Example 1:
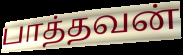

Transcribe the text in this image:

பாத்தவன்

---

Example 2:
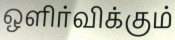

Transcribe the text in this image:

ஒளிர்விக்கும்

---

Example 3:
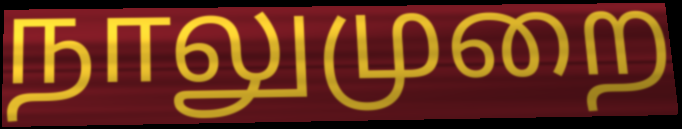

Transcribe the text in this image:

நாலுமுறை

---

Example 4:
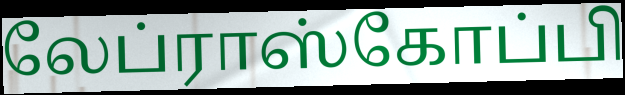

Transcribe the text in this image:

லேப்ராஸ்கோப்பி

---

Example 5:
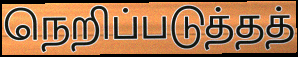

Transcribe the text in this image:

நெறிப்படுத்தத்